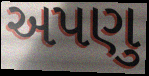
અપણુ